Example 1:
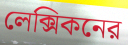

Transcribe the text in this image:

লেক্সিকনের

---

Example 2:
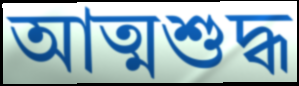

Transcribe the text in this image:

আত্মশুদ্ধ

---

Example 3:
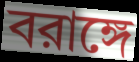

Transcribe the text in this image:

বরাঙ্গে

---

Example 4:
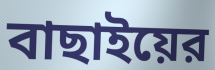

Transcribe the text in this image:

বাছাইয়ের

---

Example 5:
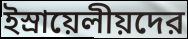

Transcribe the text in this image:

ইস্রায়েলীয়দের